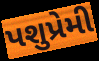
પશુપ્રેમી